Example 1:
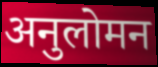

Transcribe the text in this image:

अनुलोमन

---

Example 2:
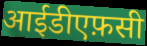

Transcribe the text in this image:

आईडीएफ़सी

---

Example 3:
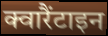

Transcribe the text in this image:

क्वारैंटाइन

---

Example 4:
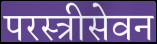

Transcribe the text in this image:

परस्त्रीसेवन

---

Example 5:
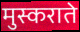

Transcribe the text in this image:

मुस्‍कराते